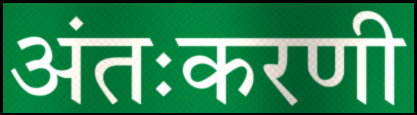
अंतःकरणी